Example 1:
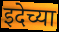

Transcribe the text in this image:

इदेच्या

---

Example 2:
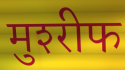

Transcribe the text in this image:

मुश्रीफ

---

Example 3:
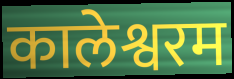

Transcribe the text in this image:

कालेश्वरम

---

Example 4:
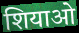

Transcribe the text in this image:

शियाओ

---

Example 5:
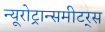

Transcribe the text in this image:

न्यूरोट्रान्समीटर्स